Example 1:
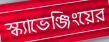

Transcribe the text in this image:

স্ক্যাভেঞ্জিংয়ের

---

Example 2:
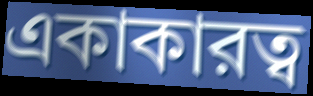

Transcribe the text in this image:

একাকারত্ব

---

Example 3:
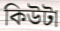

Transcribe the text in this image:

কিউটা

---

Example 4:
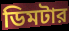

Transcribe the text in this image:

ডিমটার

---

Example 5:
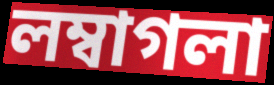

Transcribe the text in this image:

লম্বাগলা